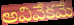
అవివేకమే